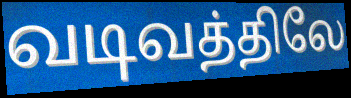
வடிவத்திலே